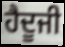
ਹੈਦੂਜੀ